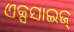
ଏକ୍ସସାଇଜ୍